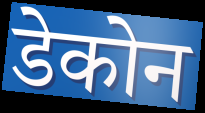
डेकोन